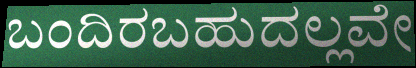
ಬಂದಿರಬಹುದಲ್ಲವೇ